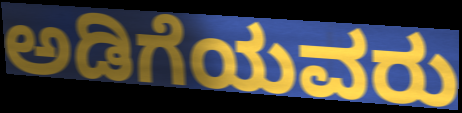
ಅಡಿಗೆಯವರು